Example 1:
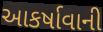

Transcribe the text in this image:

આકર્ષાવાની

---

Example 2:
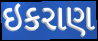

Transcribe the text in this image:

ઇકરાણ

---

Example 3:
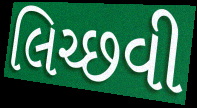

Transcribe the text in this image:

લિચ્છવી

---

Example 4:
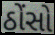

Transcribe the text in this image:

ઠોંસો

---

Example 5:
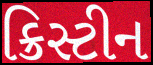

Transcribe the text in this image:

ક્રિસ્ટીન